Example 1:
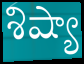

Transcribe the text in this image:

శిష్యా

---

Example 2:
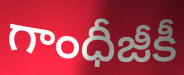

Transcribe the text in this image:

గాంధీజీకీ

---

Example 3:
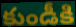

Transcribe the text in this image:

కుండీకి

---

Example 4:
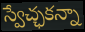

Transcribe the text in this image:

స్వేచ్ఛకన్నా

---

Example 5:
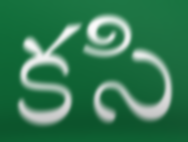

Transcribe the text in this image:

కసి